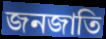
জনজাতি